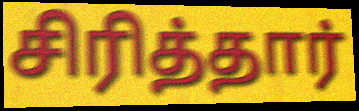
சிரித்தார்